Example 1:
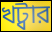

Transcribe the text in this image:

খট্বার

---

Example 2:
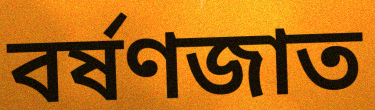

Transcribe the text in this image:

বর্ষণজাত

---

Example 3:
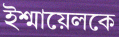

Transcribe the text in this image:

ইশ্মায়েলকে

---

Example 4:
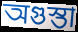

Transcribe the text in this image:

অগুস্তা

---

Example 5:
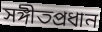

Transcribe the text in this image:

সঙ্গীতপ্রধান